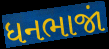
ધનભાજાં